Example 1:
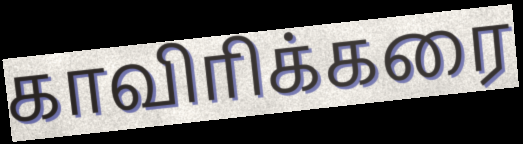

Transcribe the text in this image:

காவிரிக்கரை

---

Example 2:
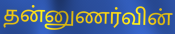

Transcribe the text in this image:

தன்னுணர்வின்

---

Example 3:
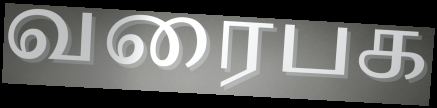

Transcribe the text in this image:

வரைபக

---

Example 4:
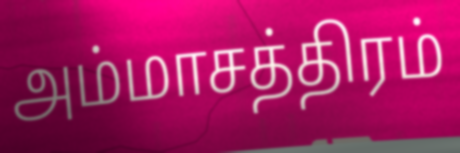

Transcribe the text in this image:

அம்மாசத்திரம்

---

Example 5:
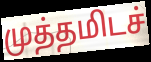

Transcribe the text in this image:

முத்தமிடச்